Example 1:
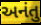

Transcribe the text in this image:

અનંતુ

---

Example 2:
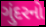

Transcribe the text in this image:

ગુંદરનો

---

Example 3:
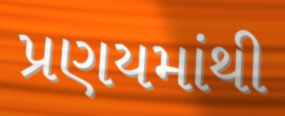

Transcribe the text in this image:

પ્રણયમાંથી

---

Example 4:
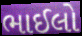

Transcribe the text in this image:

ભાઈલો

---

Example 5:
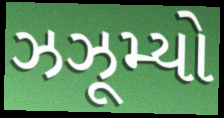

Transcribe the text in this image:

ઝઝૂમ્યો